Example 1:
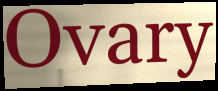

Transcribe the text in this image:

Ovary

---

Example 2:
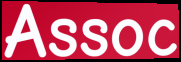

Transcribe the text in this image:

Assoc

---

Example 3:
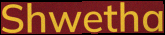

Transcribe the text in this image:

Shwetha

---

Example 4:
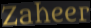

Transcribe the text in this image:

Zaheer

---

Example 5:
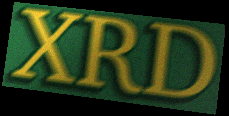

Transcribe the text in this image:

XRD